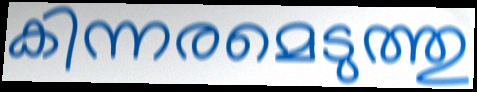
കിന്നരമെടുത്തു